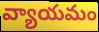
వ్యాయమం